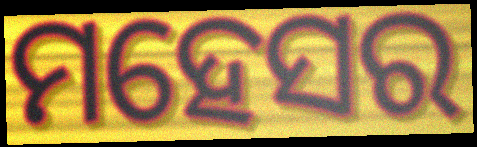
ମହେସର